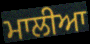
ਮਾਲੀਆ